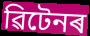
ৱিটেনৰ